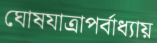
ঘোষযাত্রাপর্বাধ্যায়